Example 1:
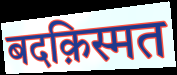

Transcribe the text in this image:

बदक़िस्मत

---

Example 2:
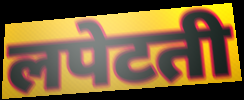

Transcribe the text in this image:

लपेटती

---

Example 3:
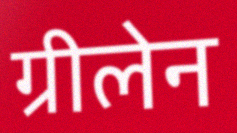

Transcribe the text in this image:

ग्रीलेन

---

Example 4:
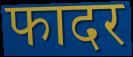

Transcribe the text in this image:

फादर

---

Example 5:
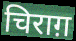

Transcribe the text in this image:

चिराग़